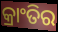
କ୍ରାଂତିର